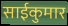
साईकुमार